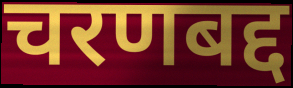
चरणबद्द